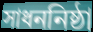
সাধননিষ্ঠা